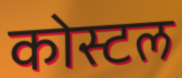
कोस्टल